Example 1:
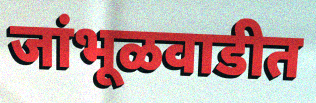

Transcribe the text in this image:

जांभूळवाडीत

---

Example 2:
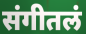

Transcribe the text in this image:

संगीतलं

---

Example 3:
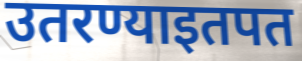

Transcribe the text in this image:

उतरण्याइतपत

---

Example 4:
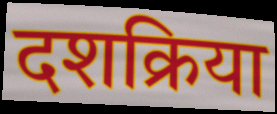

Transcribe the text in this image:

दशक्रिया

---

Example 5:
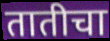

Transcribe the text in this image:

तातीचा